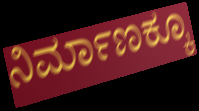
ನಿರ್ಮಾಣಕ್ಕೂ